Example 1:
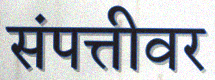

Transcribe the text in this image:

संपत्तीवर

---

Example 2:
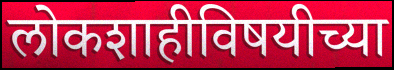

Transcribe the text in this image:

लोकशाहीविषयीच्या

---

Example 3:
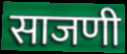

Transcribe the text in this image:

साजणी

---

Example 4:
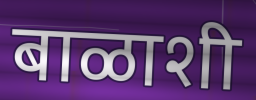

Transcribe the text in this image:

बाळाशी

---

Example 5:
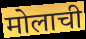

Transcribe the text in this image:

मोलाची